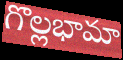
గొల్లభామా